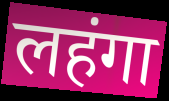
लहंगा